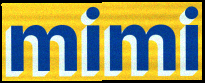
mimi